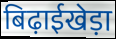
बिढ़ाईखेड़ा